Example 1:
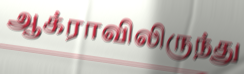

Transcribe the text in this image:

ஆக்ராவிலிருந்து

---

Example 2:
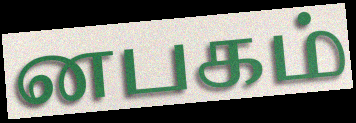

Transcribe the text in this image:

னபகம்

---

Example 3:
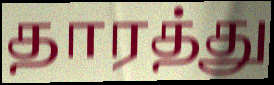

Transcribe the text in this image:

தாரத்து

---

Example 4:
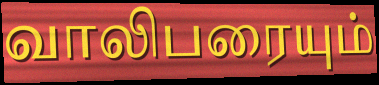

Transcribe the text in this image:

வாலிபரையும்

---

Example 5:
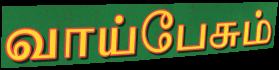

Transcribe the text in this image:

வாய்பேசும்